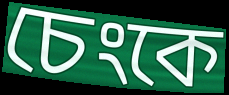
চেংকে